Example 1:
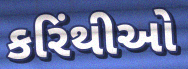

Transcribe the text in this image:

કરિંથીઓ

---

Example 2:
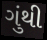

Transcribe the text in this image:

ગુંથી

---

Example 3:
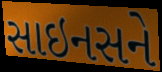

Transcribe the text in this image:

સાઇનસને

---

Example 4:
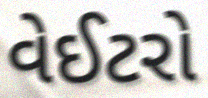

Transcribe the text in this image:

વેઈટરો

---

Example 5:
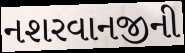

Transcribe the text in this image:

નશરવાનજીની